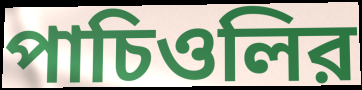
পাচিওলির